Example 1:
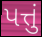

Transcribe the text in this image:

પત્તું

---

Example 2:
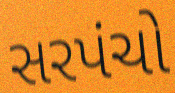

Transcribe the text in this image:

સરપંચો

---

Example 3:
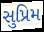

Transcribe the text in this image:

સુપ્રિમ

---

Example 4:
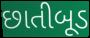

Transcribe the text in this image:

છાતીબૂડ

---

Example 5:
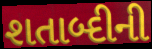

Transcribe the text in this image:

શતાબ્દીની